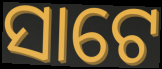
ସାଟେ